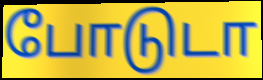
போடுடா